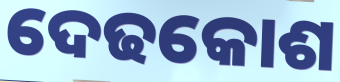
ଦେଢକୋଶ